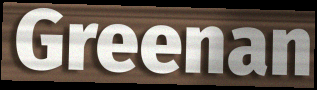
Greenan